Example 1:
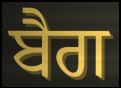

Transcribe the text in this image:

ਬੈਗ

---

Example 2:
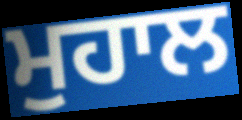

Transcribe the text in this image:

ਮੁਹਾਲ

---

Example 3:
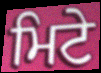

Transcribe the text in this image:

ਮਿਟੇ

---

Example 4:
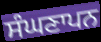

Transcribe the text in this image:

ਸੰਘਣਾਪਨ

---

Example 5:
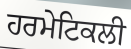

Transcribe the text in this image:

ਹਰਮੇਟਿਕਲੀ